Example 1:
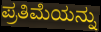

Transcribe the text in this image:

ಪ್ರತಿಮೆಯನ್ನು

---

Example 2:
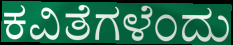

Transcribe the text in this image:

ಕವಿತೆಗಳೆಂದು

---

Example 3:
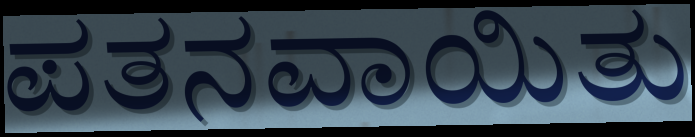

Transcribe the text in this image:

ಪತನವಾಯಿತು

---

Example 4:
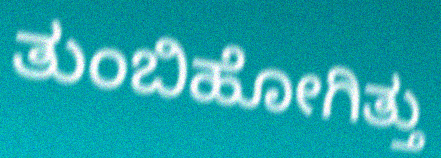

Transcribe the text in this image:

ತುಂಬಿಹೋಗಿತ್ತು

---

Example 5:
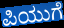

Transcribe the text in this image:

ಪಿಯುಗೆ